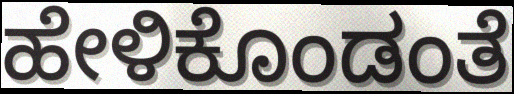
ಹೇಳಿಕೊಂಡಂತೆ